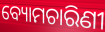
ବ୍ୟୋମଚାରିଣୀ